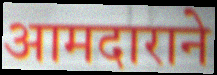
आमदाराने